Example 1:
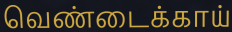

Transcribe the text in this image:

வெண்டைக்காய்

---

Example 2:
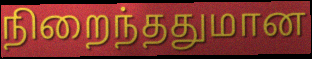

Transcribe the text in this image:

நிறைந்ததுமான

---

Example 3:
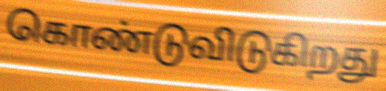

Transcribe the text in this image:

கொண்டுவிடுகிறது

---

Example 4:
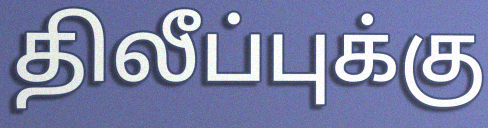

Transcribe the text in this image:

திலீப்புக்கு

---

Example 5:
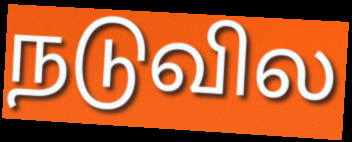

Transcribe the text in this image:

நடுவில